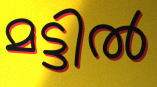
മട്ടിൽ